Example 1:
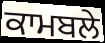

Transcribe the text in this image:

ਕਾਮਬਲੇ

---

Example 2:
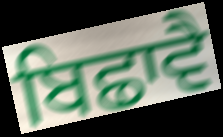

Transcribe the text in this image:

ਬਿਛਾਵੈ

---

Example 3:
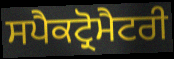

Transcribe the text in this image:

ਸਪੈਕਟ੍ਰੋਮੈਟਰੀ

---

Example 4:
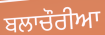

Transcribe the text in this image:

ਬਲਾਚੌਰੀਆ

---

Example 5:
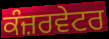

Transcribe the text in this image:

ਕੰਜ਼ਰਵੇਟਰ